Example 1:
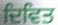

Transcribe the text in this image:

ਦਿਵਿਤ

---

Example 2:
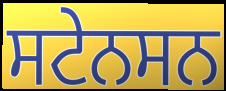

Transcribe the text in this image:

ਸਟੇਨਸਨ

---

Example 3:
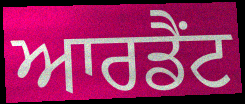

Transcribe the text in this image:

ਆਰਡੈਂਟ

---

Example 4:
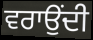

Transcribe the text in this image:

ਵਰਾਉਂਦੀ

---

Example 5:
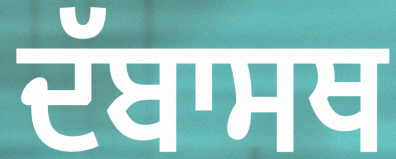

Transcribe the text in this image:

ਦੱਬਾਸਥ